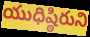
యుధిష్ఠిరుని